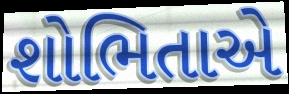
શોભિતાએ